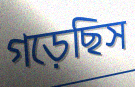
গড়েছিস